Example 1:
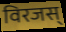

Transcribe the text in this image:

विरजस्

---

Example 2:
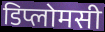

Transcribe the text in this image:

डिप्लोमसी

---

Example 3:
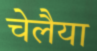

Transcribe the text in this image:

चेलैया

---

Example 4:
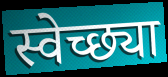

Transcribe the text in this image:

स्वेच्छ्या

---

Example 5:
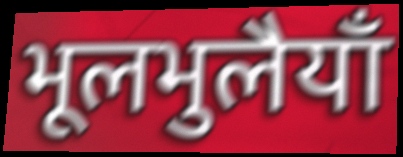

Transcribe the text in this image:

भूलभुलैयाँ